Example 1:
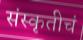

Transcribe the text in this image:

संस्कृतीचं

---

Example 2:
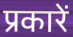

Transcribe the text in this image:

प्रकारें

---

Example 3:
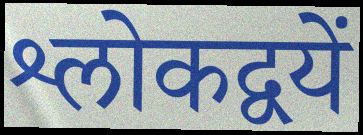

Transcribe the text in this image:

श्लोकद्वयें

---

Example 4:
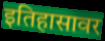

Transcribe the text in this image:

इतिहासावर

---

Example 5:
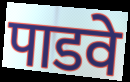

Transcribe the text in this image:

पाडवे